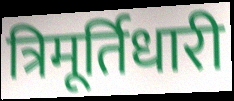
त्रिमूर्तिधारी